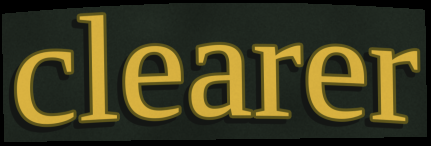
clearer